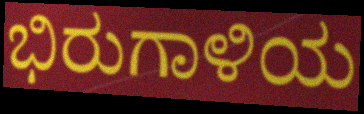
ಭಿರುಗಾಳಿಯ